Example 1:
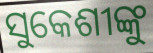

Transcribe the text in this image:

ସୁକେଶୀଙ୍କୁ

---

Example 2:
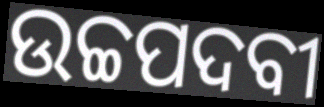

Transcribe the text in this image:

ଉଚ୍ଚପଦବୀ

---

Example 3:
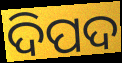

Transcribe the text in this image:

ଦିପଦ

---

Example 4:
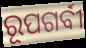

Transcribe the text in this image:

ରୂପଗର୍ବୀ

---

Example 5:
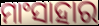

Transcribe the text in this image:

ମାଂସାହାର